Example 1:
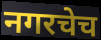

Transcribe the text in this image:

नगरचेच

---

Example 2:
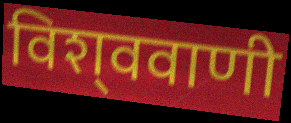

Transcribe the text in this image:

विश्ववाणी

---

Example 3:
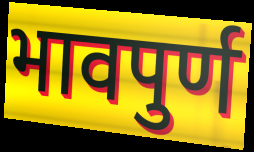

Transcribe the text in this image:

भावपुर्ण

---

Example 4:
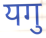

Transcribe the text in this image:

यगु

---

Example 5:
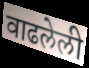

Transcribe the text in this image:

वाढलेली